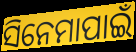
ସିନେମାପାଇଁ